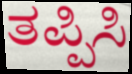
ತಪ್ಪಿಸಿ